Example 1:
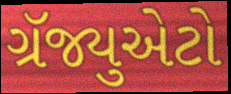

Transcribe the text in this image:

ગ્રૅજ્યુએટો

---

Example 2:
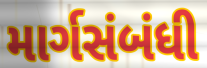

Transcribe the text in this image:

માર્ગસંબંધી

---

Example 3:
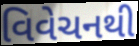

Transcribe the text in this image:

વિવેચનથી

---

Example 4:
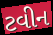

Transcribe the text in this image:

ટવીન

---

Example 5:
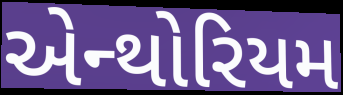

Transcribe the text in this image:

એન્થોરિયમ